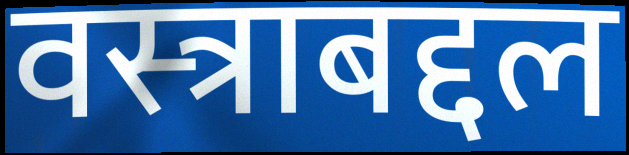
वस्त्राबद्दल